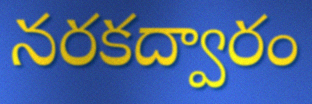
నరకద్వారం